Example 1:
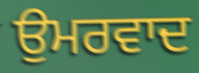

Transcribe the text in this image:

ਉਮਰਵਾਦ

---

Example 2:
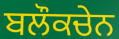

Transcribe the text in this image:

ਬਲੌਕਚੇਨ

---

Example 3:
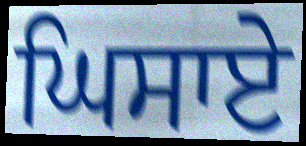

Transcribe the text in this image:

ਘਿਸਾਏ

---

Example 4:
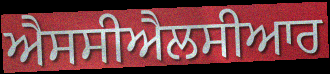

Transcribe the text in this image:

ਐਸਸੀਐਲਸੀਆਰ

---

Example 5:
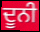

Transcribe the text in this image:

ਦੂਨੀ